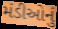
મંડીઓનું